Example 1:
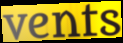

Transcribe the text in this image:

vents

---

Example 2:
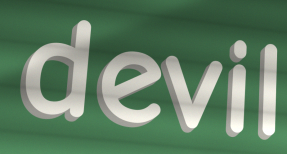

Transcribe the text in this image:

devil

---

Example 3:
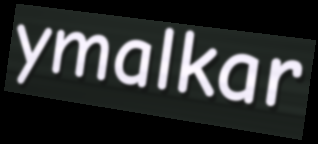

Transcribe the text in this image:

ymalkar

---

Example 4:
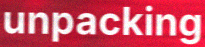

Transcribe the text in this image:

unpacking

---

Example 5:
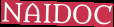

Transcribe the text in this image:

NAIDOC